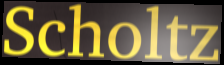
Scholtz